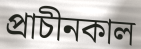
প্রাচীনকাল